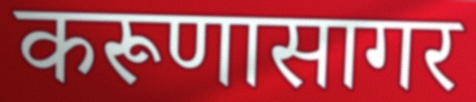
करूणासागर